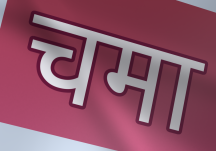
चमा